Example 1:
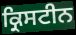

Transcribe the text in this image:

ਕ੍ਰਿਸਟੀਨ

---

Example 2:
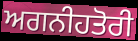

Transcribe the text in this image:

ਅਗਨੀਹਤੋਰੀ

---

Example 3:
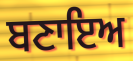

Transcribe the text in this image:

ਬਣਾਇਅ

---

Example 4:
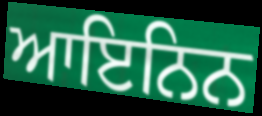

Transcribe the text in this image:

ਆਇਨਿਨ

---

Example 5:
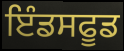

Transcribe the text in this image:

ਇੰਡਸਫੂਡ